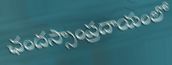
ఛందస్సాంప్రదాయంలో